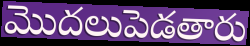
మొదలుపెడతారు